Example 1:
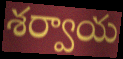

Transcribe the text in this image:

శర్వాయ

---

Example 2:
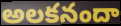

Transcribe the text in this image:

అలకనందా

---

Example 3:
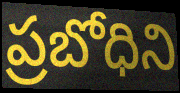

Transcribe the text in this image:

ప్రబోధిని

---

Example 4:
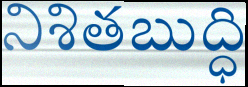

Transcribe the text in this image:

నిశితబుద్ధి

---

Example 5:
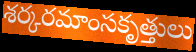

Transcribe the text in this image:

శర్కరమాంసకృత్తులు